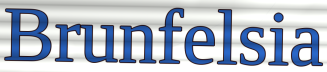
Brunfelsia